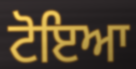
ਟੋਇਆ